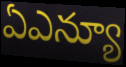
ఏఎన్యూ